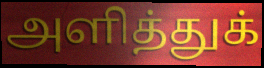
அளித்துக்